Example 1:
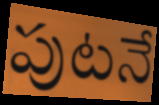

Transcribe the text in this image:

పుటనే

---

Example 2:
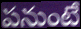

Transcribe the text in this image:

పనుంటే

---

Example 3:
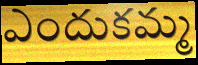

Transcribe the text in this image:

ఎందుకమ్మ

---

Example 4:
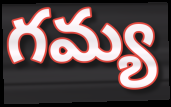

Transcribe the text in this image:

గమ్య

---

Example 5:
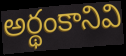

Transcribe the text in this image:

అర్థంకానివి